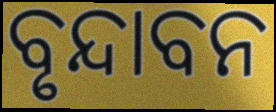
ବୃନ୍ଦାବନ